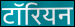
टॉरियन